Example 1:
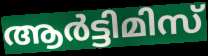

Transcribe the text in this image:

ആർട്ടിമിസ്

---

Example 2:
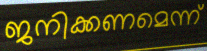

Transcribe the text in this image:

ജനിക്കണമെന്ന്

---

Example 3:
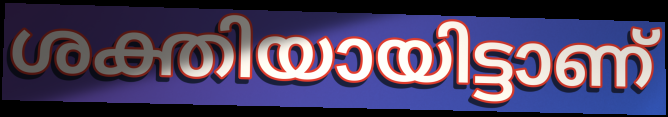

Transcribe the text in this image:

ശക്തിയായിട്ടാണ്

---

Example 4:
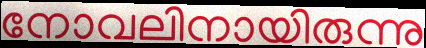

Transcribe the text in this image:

നോവലിനായിരുന്നു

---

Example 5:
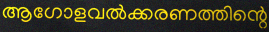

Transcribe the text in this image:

ആഗോളവൽക്കരണത്തിന്റെ